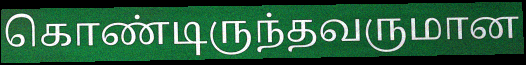
கொண்டிருந்தவருமான